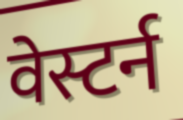
वेस्‍टर्न